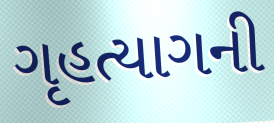
ગૃહત્યાગની